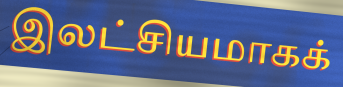
இலட்சியமாகக்